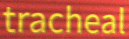
tracheal